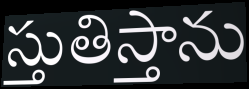
స్తుతిస్తాను